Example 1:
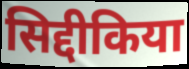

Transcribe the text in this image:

सिद्दीकिया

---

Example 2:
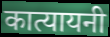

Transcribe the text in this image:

कात्यायनी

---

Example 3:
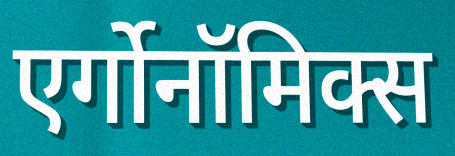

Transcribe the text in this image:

एर्गोनॉमिक्स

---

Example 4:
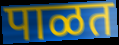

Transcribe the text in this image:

पाळत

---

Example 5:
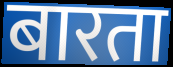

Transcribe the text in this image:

बारता